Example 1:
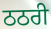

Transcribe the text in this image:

ਠਠਰੀ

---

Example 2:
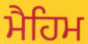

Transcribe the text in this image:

ਮੈਹਿਮ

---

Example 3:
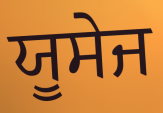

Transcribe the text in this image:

ਯੂਸੇਜ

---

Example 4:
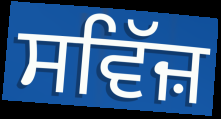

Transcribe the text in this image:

ਸਵਿੱਜ਼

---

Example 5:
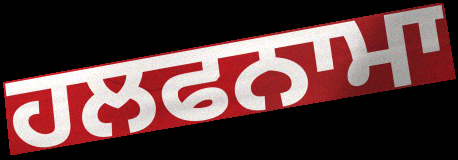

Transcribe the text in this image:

ਹਲਫਨਾਮਾ